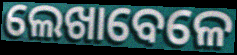
ଲେଖାବେଳେ